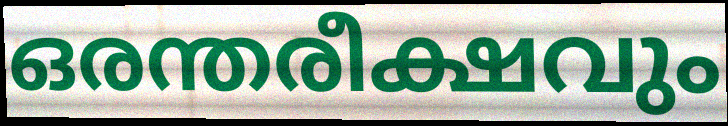
ഒരന്തരീക്ഷവും